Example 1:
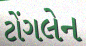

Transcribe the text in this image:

ટોંગલેન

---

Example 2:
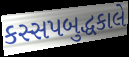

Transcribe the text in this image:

કસ્સપબુદ્ધકાલે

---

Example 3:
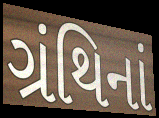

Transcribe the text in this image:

ગ્રંથિનાં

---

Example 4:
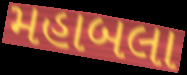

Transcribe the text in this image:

મહાબલા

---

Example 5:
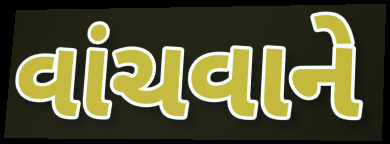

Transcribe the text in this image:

વાંચવાને